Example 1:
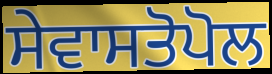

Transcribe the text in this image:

ਸੇਵਾਸਤੋਪੋਲ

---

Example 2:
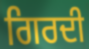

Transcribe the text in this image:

ਗਿਰਦੀ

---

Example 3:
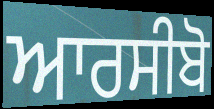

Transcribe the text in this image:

ਆਰਸੀਬੋ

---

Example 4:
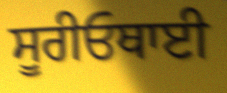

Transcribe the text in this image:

ਸੂਰੀਓਥਾਈ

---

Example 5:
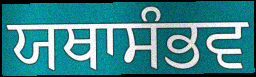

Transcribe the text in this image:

ਯਥਾਸੰਭਵ